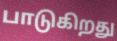
பாடுகிறது